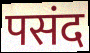
पसंद